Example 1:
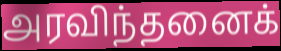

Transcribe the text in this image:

அரவிந்தனைக்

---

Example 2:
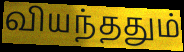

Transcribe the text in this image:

வியந்ததும்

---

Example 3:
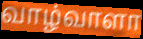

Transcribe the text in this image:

வாழ்வாளா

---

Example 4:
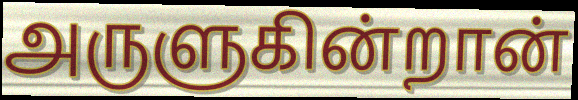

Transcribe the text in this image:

அருளுகின்றான்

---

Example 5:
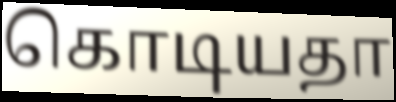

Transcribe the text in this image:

கொடியதா